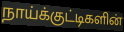
நாய்க்குட்டிகளின்